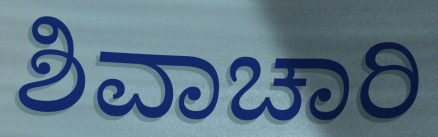
ಶಿವಾಚಾರಿ